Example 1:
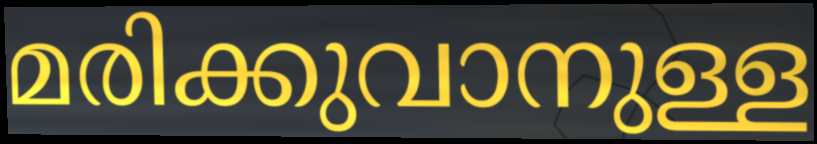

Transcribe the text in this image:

മരിക്കുവാനുള്ള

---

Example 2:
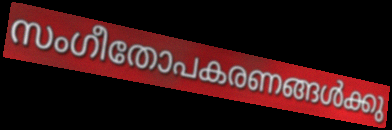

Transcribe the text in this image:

സംഗീതോപകരണങ്ങൾക്കു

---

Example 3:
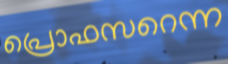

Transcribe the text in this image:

പ്രൊഫസറെന്ന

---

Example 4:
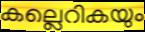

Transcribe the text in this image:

കല്ലെറികയും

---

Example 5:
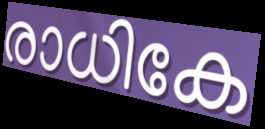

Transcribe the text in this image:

രാധികേ